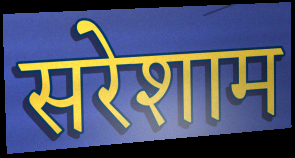
सरेशाम